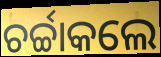
ଚର୍ଚ୍ଚାକଲେ